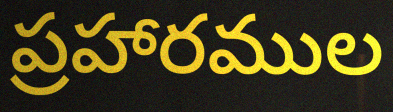
ప్రహారముల